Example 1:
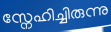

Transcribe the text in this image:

സ്നേഹിച്ചിരുന്നു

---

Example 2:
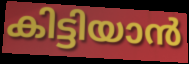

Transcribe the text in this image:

കിട്ടിയാൻ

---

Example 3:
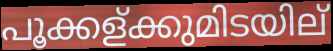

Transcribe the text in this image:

പൂക്കള്ക്കുമിടയില്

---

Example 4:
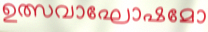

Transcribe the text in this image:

ഉത്സവാഘോഷമോ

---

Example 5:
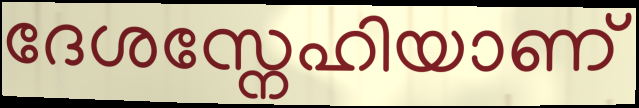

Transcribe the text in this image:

ദേശസ്നേഹിയാണ്